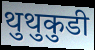
थुथुकुडी